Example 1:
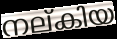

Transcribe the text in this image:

നല്‌കിയ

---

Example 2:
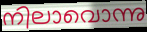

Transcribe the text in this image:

നിലാവൊന്നു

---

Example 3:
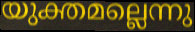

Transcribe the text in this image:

യുക്തമല്ലെന്നു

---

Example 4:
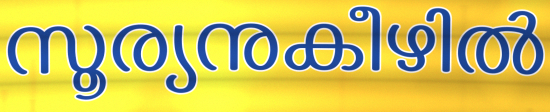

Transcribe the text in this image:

സൂര്യനുകീഴിൽ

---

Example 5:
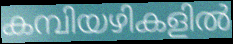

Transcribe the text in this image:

കമ്പിയഴികളിൽ